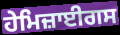
ਹੇਮਿਜ਼ਾਈਗਸ